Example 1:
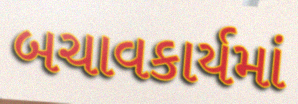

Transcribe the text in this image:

બચાવકાર્યમાં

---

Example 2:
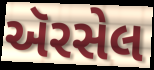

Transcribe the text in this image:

ઍરસેલ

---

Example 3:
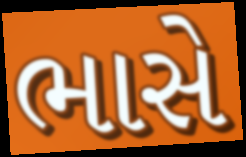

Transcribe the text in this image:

ભાસે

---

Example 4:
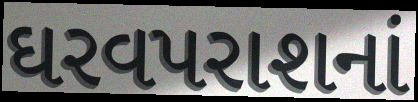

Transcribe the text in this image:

ઘરવપરાશનાં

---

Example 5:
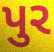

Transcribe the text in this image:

પુર